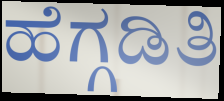
ಹೆಗ್ಗಡಿತಿ